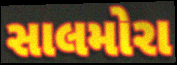
સાલમોરા